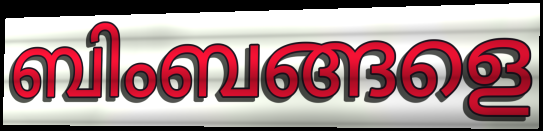
ബിംബങ്ങളെ